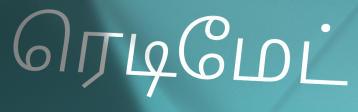
ரெடிமேட்